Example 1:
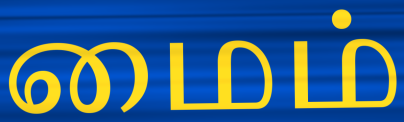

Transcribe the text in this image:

மைம்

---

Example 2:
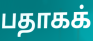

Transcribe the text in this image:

பதாகக்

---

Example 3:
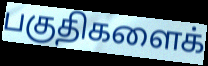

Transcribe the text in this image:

பகுதிகளைக்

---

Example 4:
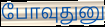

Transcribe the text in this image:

போவுதுனு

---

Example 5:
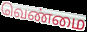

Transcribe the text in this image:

வெண்மை